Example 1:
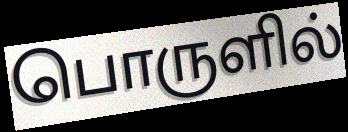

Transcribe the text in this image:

பொருளில்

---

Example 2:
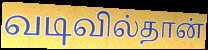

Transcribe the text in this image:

வடிவில்தான்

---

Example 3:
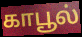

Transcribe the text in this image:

காபூல்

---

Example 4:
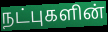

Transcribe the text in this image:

நட்புகளின்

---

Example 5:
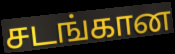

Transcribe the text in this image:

சடங்கான